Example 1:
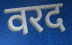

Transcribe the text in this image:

वरद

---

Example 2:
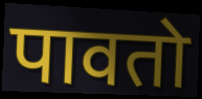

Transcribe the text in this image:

पावतो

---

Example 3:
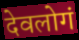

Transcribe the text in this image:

देवलोगं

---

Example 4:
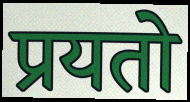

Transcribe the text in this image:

प्रयतो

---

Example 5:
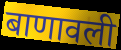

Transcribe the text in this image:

बाणावली